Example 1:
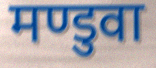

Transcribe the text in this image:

मण्डुवा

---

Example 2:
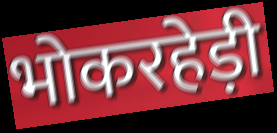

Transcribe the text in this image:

भोकरहेड़ी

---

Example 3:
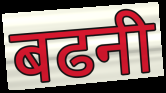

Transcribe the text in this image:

बढनी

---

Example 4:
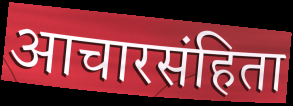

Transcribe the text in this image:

आचारसंहिता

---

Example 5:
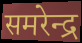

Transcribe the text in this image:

समरेन्द्र